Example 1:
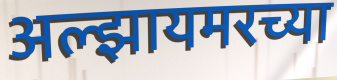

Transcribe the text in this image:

अल्झायमरच्या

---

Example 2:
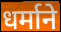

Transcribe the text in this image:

धर्माने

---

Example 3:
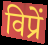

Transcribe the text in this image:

विप्रें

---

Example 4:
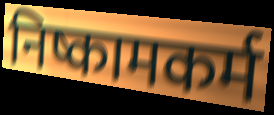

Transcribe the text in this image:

निष्कामकर्म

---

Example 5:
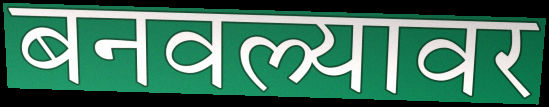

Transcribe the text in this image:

बनवल्यावर